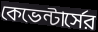
কেভেন্টার্সের